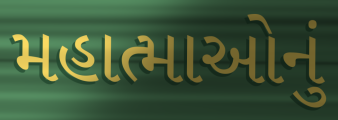
મહાત્માઓનું